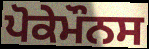
ਪੋਕੇਮੌਨਸ